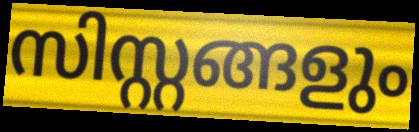
സിസ്റ്റങ്ങളും